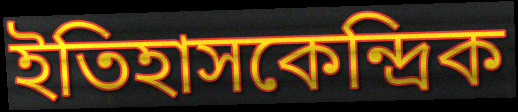
ইতিহাসকেন্দ্রিক